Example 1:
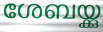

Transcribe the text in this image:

ശേബയ്ക്കു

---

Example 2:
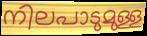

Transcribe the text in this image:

നിലപാടുമുള്ള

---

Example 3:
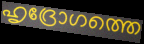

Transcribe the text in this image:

ഹൃദ്രോഗത്തെ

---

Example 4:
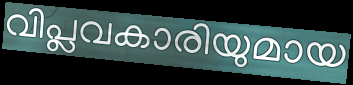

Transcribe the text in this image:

വിപ്ലവകാരിയുമായ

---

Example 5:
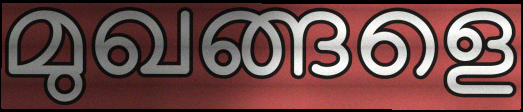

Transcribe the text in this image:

മുഖങ്ങളെ